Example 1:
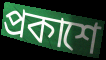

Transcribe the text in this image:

প্রকাশে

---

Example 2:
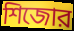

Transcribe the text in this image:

শিজোর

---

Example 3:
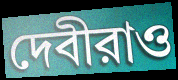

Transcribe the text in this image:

দেবীরাও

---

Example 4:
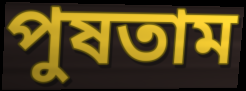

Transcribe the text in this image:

পুষতাম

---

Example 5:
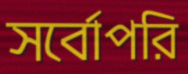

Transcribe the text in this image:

সর্বোপরি